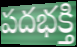
పదభక్తి